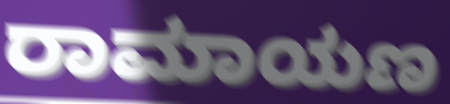
ರಾಮಾಯಣ